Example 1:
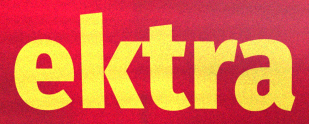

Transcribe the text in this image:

ektra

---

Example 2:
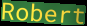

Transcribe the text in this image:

Robert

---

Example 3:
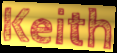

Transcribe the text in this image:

Keith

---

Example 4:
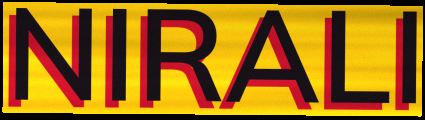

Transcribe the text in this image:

NIRALI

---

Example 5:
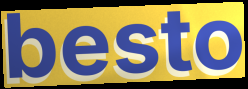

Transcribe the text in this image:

besto